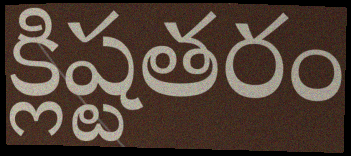
క్లిష్టతరం